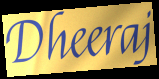
Dheeraj